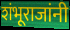
शंभूराजांनी